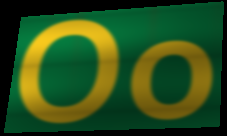
Oo